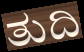
ತುದಿ